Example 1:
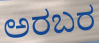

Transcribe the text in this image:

ಅರಬರ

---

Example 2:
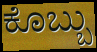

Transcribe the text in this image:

ಕೊಬ್ಬು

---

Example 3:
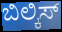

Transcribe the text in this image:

ಬಿಲ್ಕಿಸ್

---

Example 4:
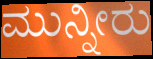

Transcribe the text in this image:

ಮುನ್ನೀರು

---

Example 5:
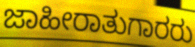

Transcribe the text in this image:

ಜಾಹೀರಾತುಗಾರರು